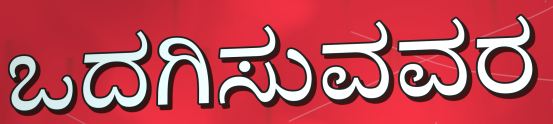
ಒದಗಿಸುವವರ